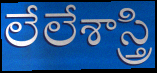
లేలేశాస్త్రి